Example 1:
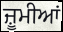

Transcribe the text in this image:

ਜ਼ੂਮੀਆਂ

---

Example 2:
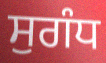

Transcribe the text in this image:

ਸੁਗੰਧ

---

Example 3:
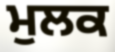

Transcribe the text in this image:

ਮੁਲਕ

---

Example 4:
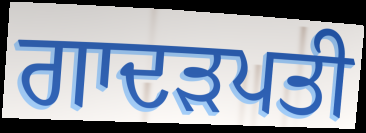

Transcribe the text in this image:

ਗਾਦੜਪਤੀ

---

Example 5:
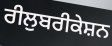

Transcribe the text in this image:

ਰੀਲੁਬਰੀਕੇਸ਼ਨ